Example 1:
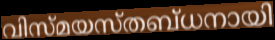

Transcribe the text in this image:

വിസ്മയസ്തബ്ധനായി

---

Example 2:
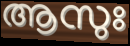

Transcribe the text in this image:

ആസുഃ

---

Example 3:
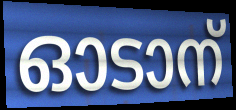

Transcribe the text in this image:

ഓടാന്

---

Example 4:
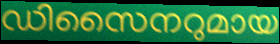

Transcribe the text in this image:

ഡിസൈനറുമായ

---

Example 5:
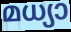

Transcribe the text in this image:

മധ്യാ